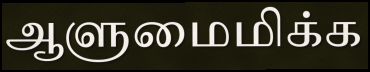
ஆளுமைமிக்க